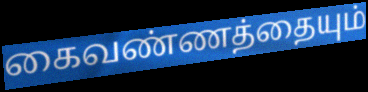
கைவண்ணத்தையும்